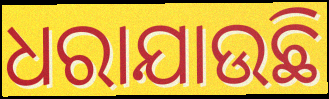
ଧରାଯାଉଛି